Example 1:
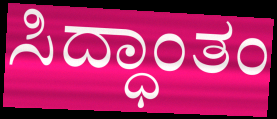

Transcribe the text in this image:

ಸಿದ್ಧಾಂತಂ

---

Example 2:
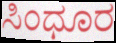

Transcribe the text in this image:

ಸಿಂಧೂರ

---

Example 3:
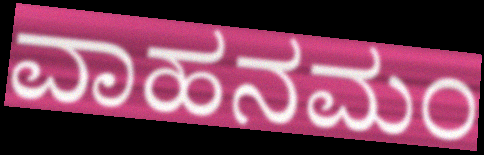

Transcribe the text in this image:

ವಾಹನಮಂ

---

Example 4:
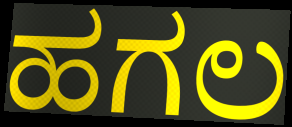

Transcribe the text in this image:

ಹಗಲ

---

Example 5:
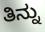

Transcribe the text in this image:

ತಿನ್ನು